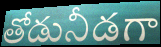
తోడునీడగా